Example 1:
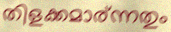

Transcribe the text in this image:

തിളക്കമാര്ന്നതും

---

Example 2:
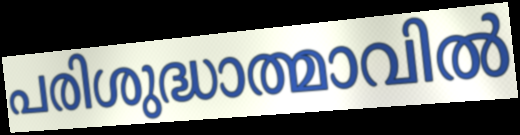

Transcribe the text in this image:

പരിശുദ്ധാത്മാവിൽ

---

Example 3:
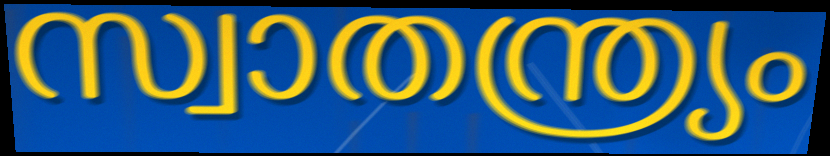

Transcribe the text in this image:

സ്വാതന്ത്ര്യം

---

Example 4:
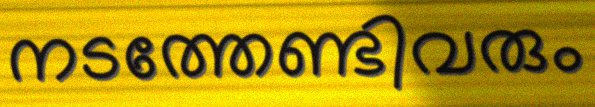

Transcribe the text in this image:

നടത്തേണ്ടിവരും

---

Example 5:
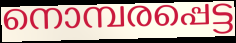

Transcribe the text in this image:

നൊമ്പരപ്പെട്ട